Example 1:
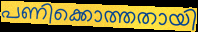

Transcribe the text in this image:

പണിക്കൊത്തതായി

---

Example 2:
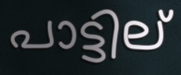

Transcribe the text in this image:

പാട്ടില്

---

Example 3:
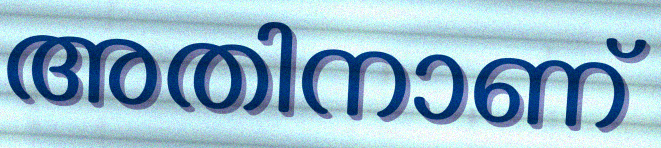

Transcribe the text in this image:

അതിനാണ്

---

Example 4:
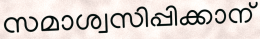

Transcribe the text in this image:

സമാശ്വസിപ്പിക്കാന്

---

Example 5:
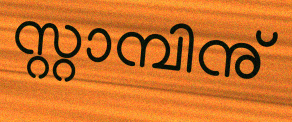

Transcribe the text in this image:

സ്റ്റാമ്പിനു്